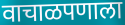
वाचाळपणाला